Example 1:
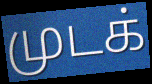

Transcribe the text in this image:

முடக்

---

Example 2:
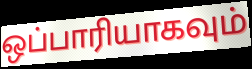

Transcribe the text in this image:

ஒப்பாரியாகவும்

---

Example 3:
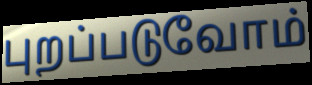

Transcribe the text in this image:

புறப்படுவோம்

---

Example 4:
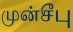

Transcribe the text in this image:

முன்சீபு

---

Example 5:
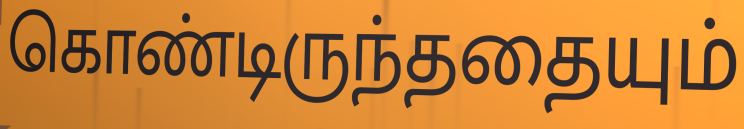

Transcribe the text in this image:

கொண்டிருந்ததையும்